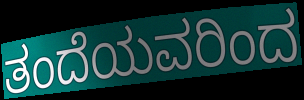
ತಂದೆಯವರಿಂದ